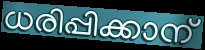
ധരിപ്പിക്കാന്